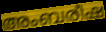
അംബരീഷ